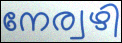
നേര്വഴി